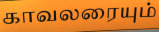
காவலரையும்